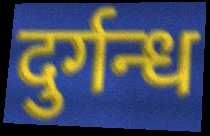
दुर्गन्‍ध